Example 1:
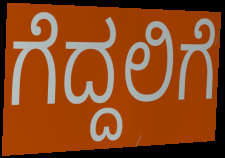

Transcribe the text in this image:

ಗೆದ್ದಲಿಗೆ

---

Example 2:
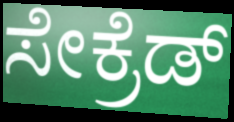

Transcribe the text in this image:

ಸೇಕ್ರೆಡ್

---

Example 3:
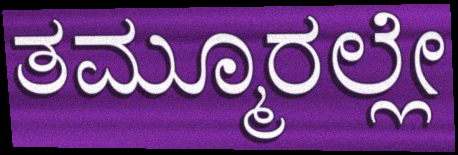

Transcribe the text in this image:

ತಮ್ಮೂರಲ್ಲೇ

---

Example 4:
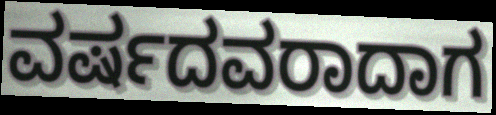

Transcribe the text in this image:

ವರ್ಷದವರಾದಾಗ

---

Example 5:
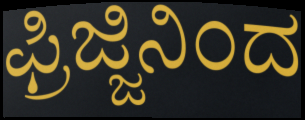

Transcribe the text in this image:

ಫ್ರಿಜ್ಜಿನಿಂದ